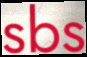
sbs